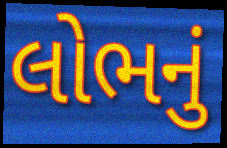
લોભનું